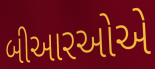
બીઆરઓએ